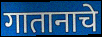
गातानाचे